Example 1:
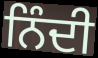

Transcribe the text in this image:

ਨਿੰਦੀ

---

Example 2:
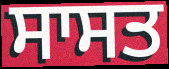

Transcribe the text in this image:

ਸਾਸਤ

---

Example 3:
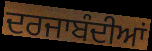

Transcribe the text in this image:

ਦਰਜਾਬੰਦੀਆਂ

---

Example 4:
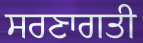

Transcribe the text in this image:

ਸਰਣਾਗਤੀ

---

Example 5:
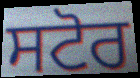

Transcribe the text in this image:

ਸਟੋਰ